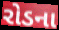
રોડના